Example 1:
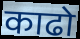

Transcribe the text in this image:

काढो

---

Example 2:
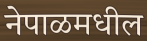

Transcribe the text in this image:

नेपाळमधील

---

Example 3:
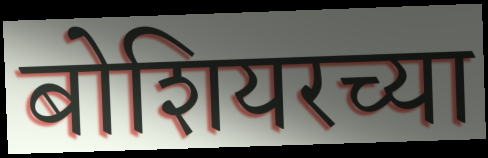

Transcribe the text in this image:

बोशियरच्या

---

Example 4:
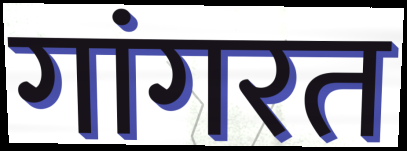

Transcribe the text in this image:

गांगरत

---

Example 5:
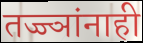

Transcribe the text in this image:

तज्ज्ञांनाही